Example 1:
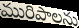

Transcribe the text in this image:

మురిపాలను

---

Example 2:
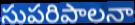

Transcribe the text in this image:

సుపరిపాలనా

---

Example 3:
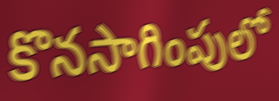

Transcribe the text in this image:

కొనసాగింపులో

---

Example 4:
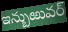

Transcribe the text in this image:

ఇన్బుఱువర్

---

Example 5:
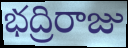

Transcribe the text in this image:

భద్రిరాజు